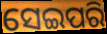
ସେଇପରି